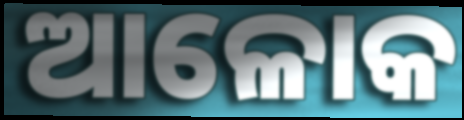
ଆଳୋକ